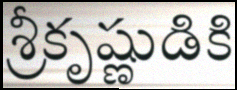
శ్రీకృష్ణుడికి